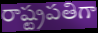
రాష్ట్రపతిగా